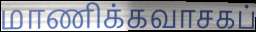
மாணிக்கவாசகப்